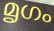
മൃഗം